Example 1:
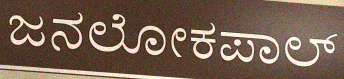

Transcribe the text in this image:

ಜನಲೋಕಪಾಲ್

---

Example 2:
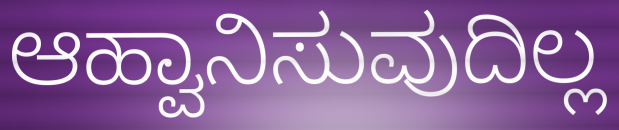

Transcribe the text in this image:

ಆಹ್ವಾನಿಸುವುದಿಲ್ಲ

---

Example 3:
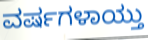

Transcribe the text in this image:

ವರ್ಷಗಳಾಯ್ತು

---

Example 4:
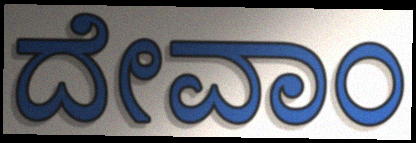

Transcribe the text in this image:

ದೇವಾಂ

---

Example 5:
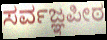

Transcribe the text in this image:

ಸರ್ವಜ್ಞಪೀಠ